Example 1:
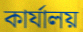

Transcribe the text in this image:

কাৰ্যালয়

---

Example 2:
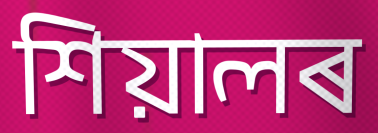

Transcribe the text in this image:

শিয়ালৰ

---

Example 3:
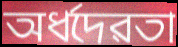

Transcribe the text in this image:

অৰ্ধদেৱতা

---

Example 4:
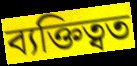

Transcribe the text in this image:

ব্যক্তিত্বত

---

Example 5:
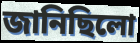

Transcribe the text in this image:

জানিছিলো